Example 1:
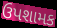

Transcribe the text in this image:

ઉપશામક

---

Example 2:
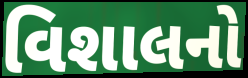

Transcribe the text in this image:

વિશાલનો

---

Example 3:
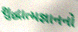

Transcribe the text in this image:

શુદ્ધાત્મજ્ઞાનનો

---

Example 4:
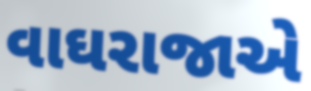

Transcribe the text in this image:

વાઘરાજાએ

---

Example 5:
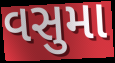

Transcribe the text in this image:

વસુમા